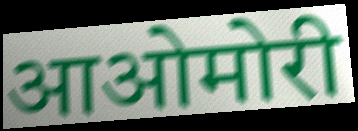
आओमोरी